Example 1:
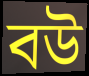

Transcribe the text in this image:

বউ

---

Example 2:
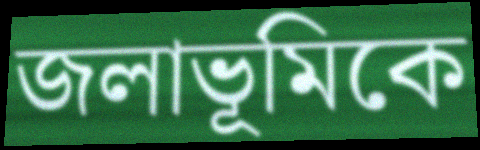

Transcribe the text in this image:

জলাভূমিকে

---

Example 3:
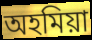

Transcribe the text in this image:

অহমিয়া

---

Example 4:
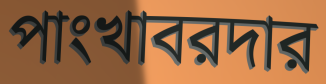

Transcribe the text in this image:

পাংখাবরদার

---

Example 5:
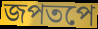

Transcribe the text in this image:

জপতপে